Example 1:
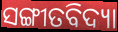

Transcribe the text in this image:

ସଙ୍ଗୀତବିଦ୍ୟା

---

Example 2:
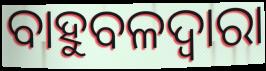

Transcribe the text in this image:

ବାହୁବଳଦ୍ୱାରା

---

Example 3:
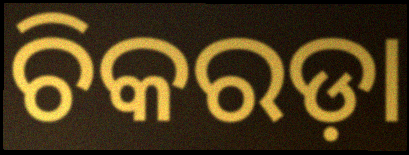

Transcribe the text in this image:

ଚିକରଡ଼ା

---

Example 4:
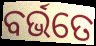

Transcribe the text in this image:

ବର୍ଭତେ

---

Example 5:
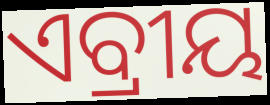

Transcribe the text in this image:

ଏବ୍ରୀୟ